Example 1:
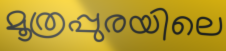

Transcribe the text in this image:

മൂത്രപ്പുരയിലെ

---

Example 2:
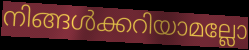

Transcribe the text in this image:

നിങ്ങൾക്കറിയാമല്ലോ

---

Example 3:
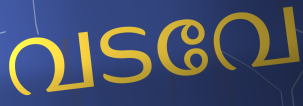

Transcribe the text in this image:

വടവേ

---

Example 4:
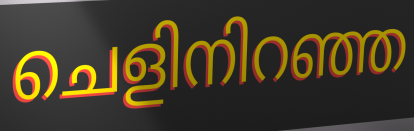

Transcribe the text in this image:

ചെളിനിറഞ്ഞ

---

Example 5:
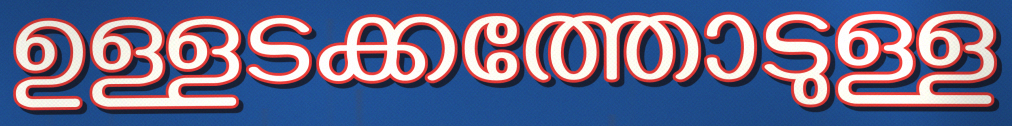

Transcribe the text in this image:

ഉള്ളടക്കത്തോടുള്ള